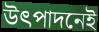
উৎপাদনেই